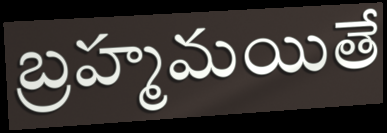
బ్రహ్మమయితే